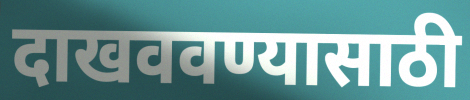
दाखववण्यासाठी